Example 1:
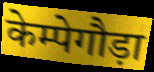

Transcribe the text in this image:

केम्पेगौड़ा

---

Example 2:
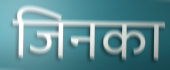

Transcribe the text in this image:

जिनका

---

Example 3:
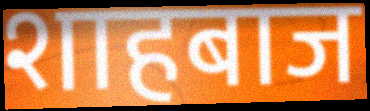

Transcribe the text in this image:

शाहबाज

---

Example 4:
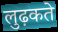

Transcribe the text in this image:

लुढ़कते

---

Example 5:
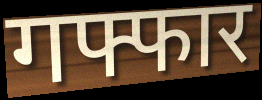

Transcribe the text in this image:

गफ्फार